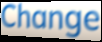
Change